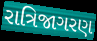
રાત્રિજાગરણ